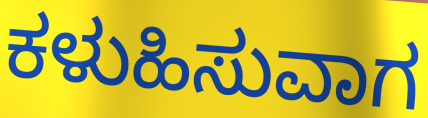
ಕಳುಹಿಸುವಾಗ